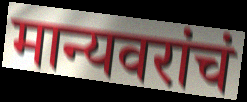
मान्यवरांचं